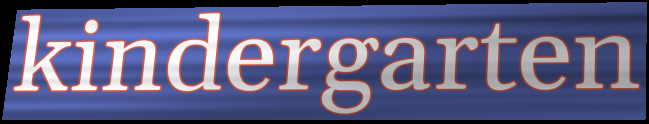
kindergarten